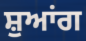
ਸ਼ੁਆਂਗ